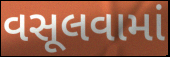
વસૂલવામાં